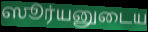
ஸூர்யனுடைய